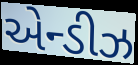
એન્ડીઝ